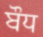
ਬੌਧ